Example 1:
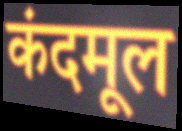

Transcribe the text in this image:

कंदमूल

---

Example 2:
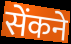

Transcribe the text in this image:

सेंकने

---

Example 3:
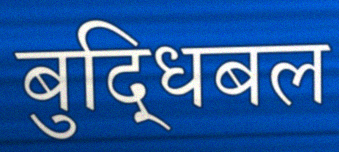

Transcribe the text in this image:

बुद्धिबल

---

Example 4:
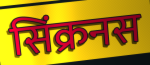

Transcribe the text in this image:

सिंक्रनस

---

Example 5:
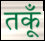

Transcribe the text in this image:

तकूँ